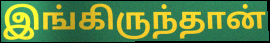
இங்கிருந்தான்